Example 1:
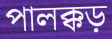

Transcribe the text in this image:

পালক্কড়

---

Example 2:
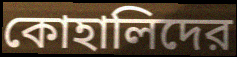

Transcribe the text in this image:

কোহালিদের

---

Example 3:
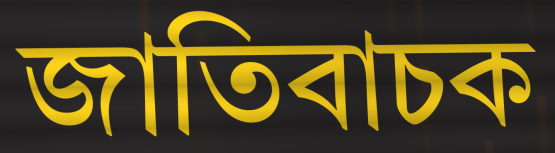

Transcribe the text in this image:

জাতিবাচক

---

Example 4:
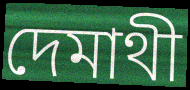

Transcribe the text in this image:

দেমাথী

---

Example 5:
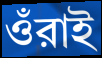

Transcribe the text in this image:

ওঁরাই